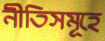
নীতিসমূহে